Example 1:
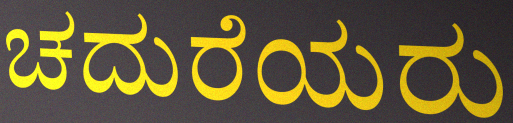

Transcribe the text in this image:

ಚದುರೆಯರು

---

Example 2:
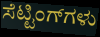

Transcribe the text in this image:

ಸೆಟ್ಟಿಂಗ್‌ಗಳು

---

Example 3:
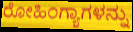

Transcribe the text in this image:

ರೋಹಿಂಗ್ಯಾಗಳನ್ನು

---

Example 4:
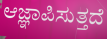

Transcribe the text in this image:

ಆಜ್ಞಾಪಿಸುತ್ತದೆ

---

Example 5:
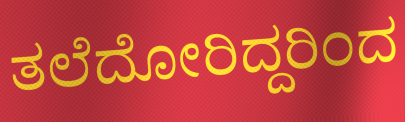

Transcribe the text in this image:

ತಲೆದೋರಿದ್ದರಿಂದ